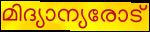
മിദ്യാന്യരോട്